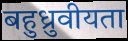
बहुध्रुवीयता